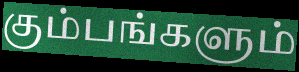
கும்பங்களும்